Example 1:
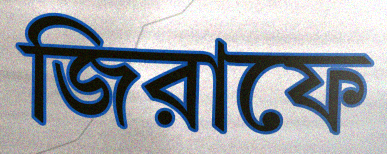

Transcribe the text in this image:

জিরাফে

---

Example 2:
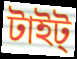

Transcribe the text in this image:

টাইট্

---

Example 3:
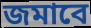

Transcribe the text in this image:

জমাবে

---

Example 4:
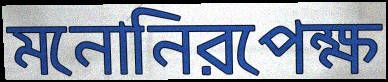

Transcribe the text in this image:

মনোনিরপেক্ষ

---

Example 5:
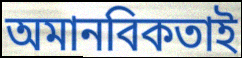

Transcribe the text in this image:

অমানবিকতাই